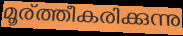
മൂര്ത്തീകരിക്കുന്നു